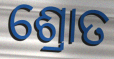
ଶ୍ରୋତ